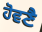
ਹੋਵਣੈ